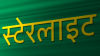
स्टेरलाइट